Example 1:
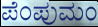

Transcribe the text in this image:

ಪೆಂಪುಮಂ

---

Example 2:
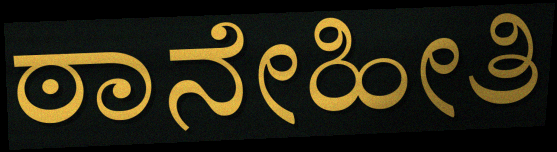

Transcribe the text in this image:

ಠಾನೇಹೀತಿ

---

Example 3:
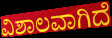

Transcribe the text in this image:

ವಿಶಾಲವಾಗಿದೆ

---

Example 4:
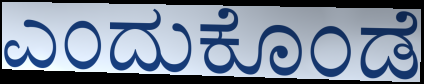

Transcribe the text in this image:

ಎಂದುಕೊಂಡೆ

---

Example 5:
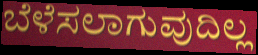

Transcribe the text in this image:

ಬೆಳೆಸಲಾಗುವುದಿಲ್ಲ